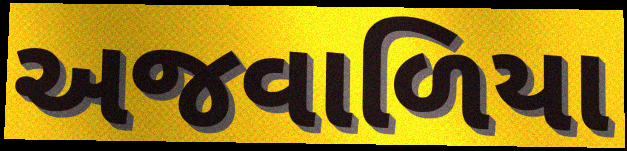
અજવાળિયા